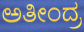
ಅತೀಂದ್ರ